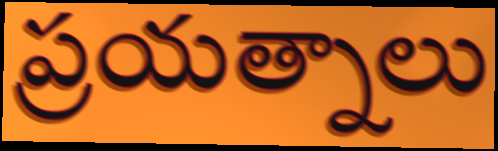
ప్రయత్నాలు